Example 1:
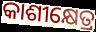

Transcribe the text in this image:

କାଶୀକ୍ଷେତ୍ର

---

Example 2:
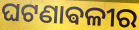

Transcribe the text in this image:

ଘଟଣାଵଳୀର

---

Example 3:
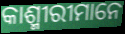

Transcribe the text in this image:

କାଶ୍ମୀରୀମାନେ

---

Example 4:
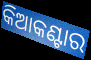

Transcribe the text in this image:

କିଆକଣ୍ଟାର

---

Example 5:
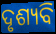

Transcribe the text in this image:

ଦୃଶ୍ୟବି